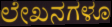
ಲೇಖನಗಳೂ